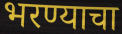
भरण्याचा